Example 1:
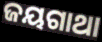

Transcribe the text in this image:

ଜୟଗାଥା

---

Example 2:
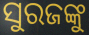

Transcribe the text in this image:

ସୁରଜଙ୍କୁ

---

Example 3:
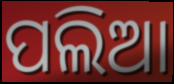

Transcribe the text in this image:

ପଲିଆ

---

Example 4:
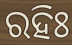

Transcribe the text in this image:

ରହିଃ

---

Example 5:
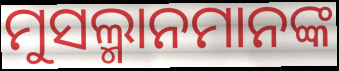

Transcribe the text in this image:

ମୁସଲ୍ମାନମାନଙ୍କ